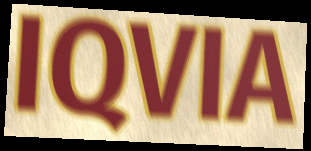
IQVIA